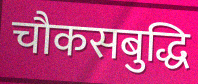
चौकसबुद्धि